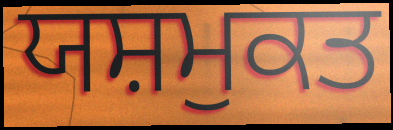
ਯਸ਼ਮੁਕਤ